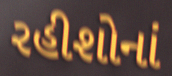
રહીશોનાં